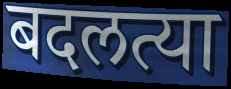
बदलत्या